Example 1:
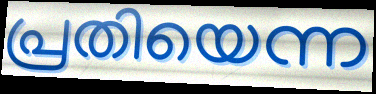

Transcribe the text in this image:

പ്രതിയെന്ന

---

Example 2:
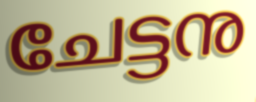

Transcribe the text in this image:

ചേട്ടനു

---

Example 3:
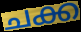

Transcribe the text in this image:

ചക്ക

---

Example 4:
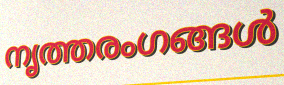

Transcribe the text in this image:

നൃത്തരംഗങ്ങൾ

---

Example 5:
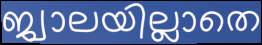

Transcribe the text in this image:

ജ്വാലയില്ലാതെ